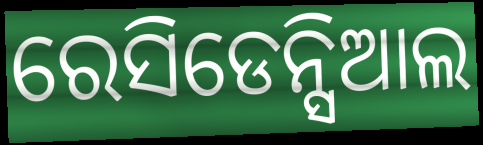
ରେସିଡେନ୍ସିଆଲ